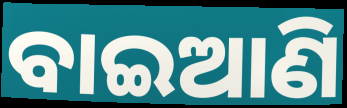
ବାଇଆଣି